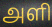
அளி